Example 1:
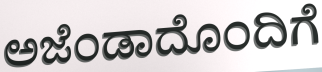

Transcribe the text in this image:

ಅಜೆಂಡಾದೊಂದಿಗೆ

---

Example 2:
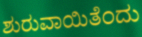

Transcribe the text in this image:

ಶುರುವಾಯಿತೆಂದು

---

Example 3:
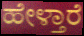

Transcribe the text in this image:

ಹೇಳ್ತಾರೆ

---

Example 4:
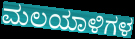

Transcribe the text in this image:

ಮಲಯಾಳಿಗಳ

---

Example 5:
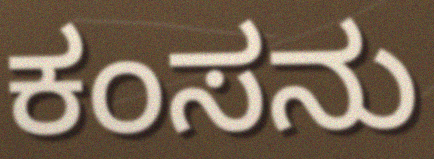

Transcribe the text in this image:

ಕಂಸನು